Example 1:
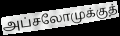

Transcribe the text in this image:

அப்சலோமுக்குத்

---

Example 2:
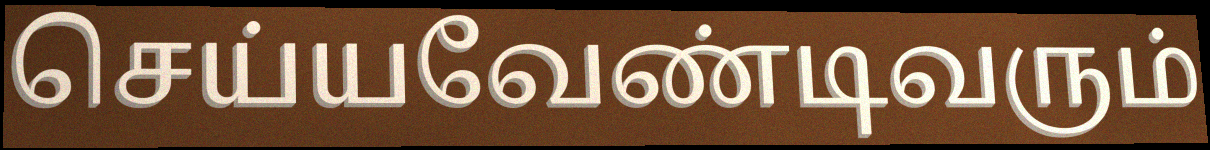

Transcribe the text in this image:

செய்யவேண்டிவரும்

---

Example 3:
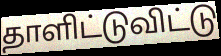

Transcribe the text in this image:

தாளிட்டுவிட்டு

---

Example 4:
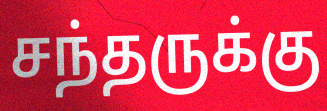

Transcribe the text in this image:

சந்தருக்கு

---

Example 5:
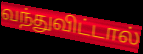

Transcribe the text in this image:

வந்துவிட்டால்